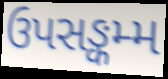
ઉપસઙ્કમ્મ